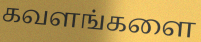
கவளங்களை